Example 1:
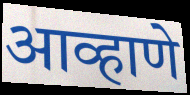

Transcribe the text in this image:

आव्हाणे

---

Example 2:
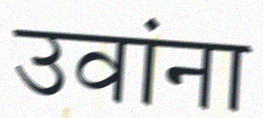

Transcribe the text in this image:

उवांना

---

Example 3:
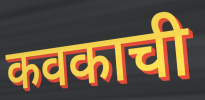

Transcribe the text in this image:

कवकाची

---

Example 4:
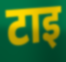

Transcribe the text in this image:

टाइ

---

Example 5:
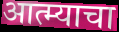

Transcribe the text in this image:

आत्म्याचा